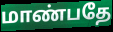
மாண்பதே